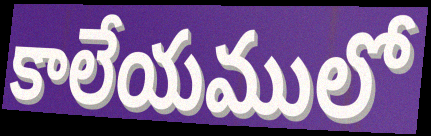
కాలేయములో